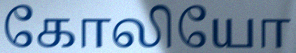
கோலியோ